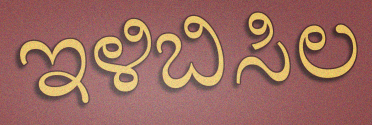
ಇಳಿಬಿಸಿಲ